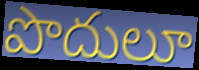
పొదులూ